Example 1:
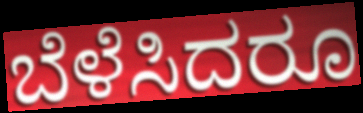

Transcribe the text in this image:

ಬೆಳೆಸಿದರೂ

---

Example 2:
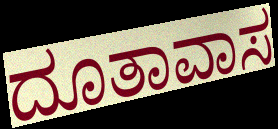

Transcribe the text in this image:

ದೂತಾವಾಸ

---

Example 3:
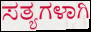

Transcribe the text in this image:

ಸತ್ಯಗಳಾಗಿ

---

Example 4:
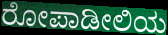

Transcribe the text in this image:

ರೋಪಾಡೀಲಿಯ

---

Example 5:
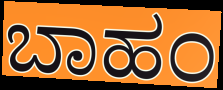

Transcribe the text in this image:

ಬಾಹಂ